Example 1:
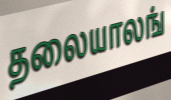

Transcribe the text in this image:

தலையாலங்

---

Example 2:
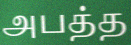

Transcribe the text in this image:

அபத்த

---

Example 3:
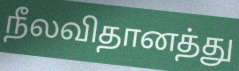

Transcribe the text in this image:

நீலவிதானத்து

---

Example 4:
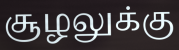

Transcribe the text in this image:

சூழலுக்கு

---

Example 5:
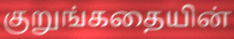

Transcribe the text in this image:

குறுங்கதையின்